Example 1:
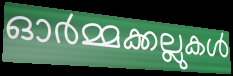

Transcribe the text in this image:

ഓർമ്മക്കല്ലുകൾ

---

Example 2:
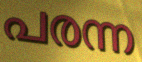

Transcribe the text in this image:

പരന്ന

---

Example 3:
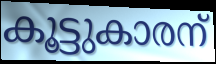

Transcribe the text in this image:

കൂട്ടുകാരന്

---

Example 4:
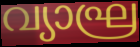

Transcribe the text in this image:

വ്യാഘ്ര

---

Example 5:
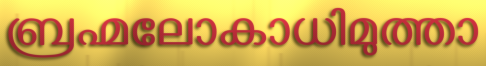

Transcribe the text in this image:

ബ്രഹ്മലോകാധിമുത്താ